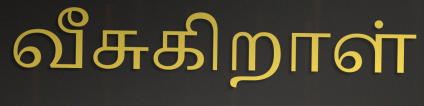
வீசுகிறாள்